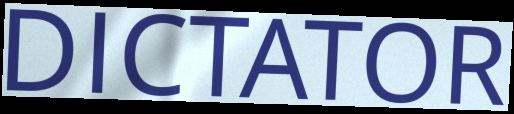
DICTATOR